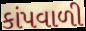
કાંપવાળી